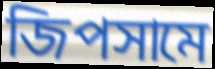
জিপসামে